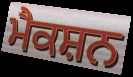
ਮੈਕਸ਼ਨ